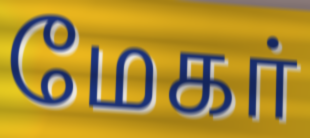
மேகர்